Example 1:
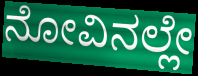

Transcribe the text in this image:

ನೋವಿನಲ್ಲೇ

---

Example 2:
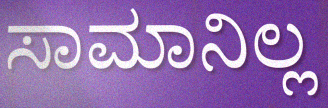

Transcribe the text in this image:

ಸಾಮಾನಿಲ್ಲ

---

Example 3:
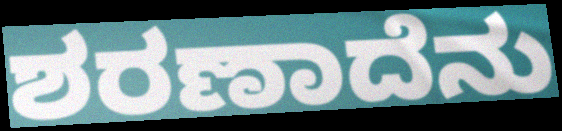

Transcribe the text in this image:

ಶರಣಾದೆನು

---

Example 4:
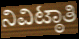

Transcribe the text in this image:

ನಿವಿಟ್ಠಾತಿ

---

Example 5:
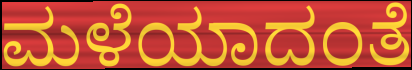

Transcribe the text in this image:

ಮಳೆಯಾದಂತೆ